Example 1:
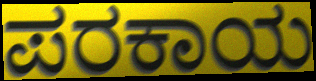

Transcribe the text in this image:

ಪರಕಾಯ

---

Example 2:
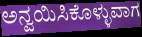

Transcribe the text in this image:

ಅನ್ವಯಿಸಿಕೊಳ್ಳುವಾಗ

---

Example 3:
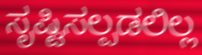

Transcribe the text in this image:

ಸೃಷ್ಟಿಸಲ್ಪಡಲಿಲ್ಲ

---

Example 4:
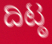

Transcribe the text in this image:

ದಿಟ್ಠ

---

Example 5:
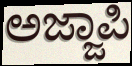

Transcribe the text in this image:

ಅಜ್ಜಾಪಿ